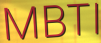
MBTI